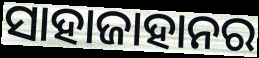
ସାହାଜାହାନର